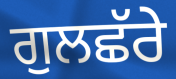
ਗੁਲਛੱਰੇ